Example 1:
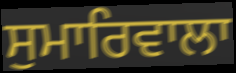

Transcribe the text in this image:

ਸੁਮਾਰਿਵਾਲਾ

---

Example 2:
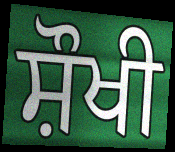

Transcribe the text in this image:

ਸ਼ੌਖੀ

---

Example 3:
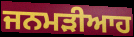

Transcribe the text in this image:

ਜਨਮੜੀਆਹ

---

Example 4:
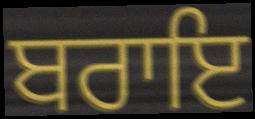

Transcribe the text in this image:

ਬਰਾਇ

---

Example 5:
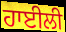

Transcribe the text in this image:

ਹਾਈਲੀ